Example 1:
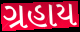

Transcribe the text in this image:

ગ્રહાય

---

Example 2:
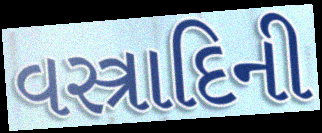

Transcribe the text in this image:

વસ્ત્રાદિની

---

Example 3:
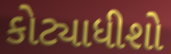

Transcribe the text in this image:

કોટ્યાધીશો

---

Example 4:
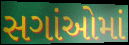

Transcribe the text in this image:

સગાંઓમાં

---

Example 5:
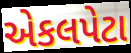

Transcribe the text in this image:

એકલપેટા